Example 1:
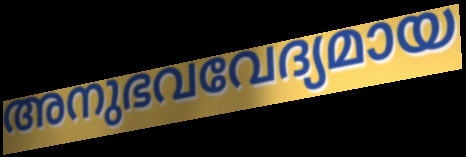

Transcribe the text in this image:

അനുഭവവേദ്യമായ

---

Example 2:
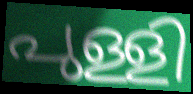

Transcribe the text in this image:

പുള്ളി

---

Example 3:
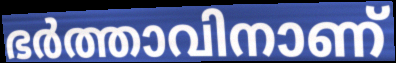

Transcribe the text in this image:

ഭർത്താവിനാണ്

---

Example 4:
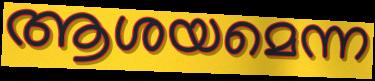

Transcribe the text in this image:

ആശയമെന്ന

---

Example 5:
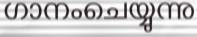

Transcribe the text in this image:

ഗാനംചെയ്യുന്നു